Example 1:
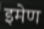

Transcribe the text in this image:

इमेण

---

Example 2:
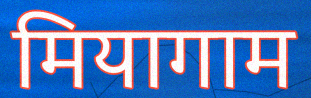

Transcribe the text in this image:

मियागाम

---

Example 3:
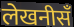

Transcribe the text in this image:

लेखनीसँ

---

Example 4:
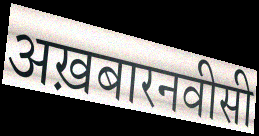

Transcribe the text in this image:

अख़बारनवीसी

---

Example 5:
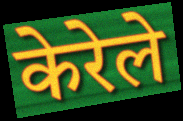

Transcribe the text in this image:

केरेले